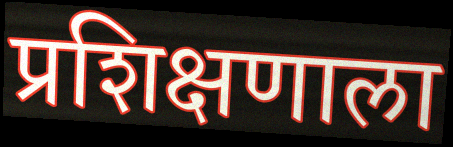
प्रशिक्षणाला